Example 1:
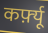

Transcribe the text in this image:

कर्फ़्यू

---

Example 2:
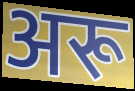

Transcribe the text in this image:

अरू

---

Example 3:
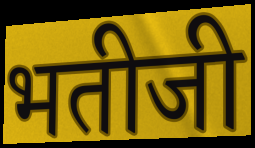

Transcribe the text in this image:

भतीजी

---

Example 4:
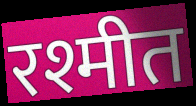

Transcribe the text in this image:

रश्मीत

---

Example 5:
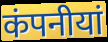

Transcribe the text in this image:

कंपनीयां